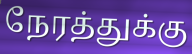
நேரத்துக்கு